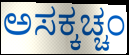
ಅಸಕ್ಕಚ್ಚಂ